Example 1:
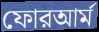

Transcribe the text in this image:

ফোরআর্ম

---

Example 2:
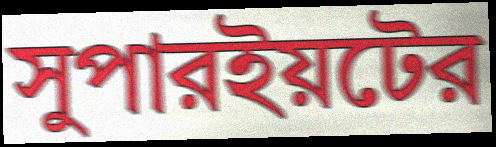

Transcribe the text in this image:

সুপারইয়টের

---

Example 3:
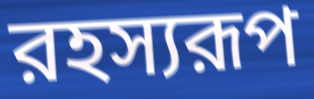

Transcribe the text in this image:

রহস্যরূপ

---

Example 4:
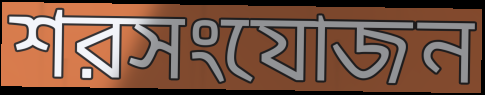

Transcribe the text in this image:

শরসংযোজন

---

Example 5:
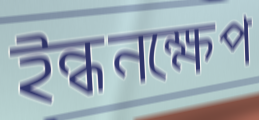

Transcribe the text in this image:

ইন্ধনক্ষেপ